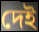
দেই